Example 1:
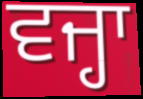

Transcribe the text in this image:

ਵਜ੍ਹਾ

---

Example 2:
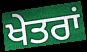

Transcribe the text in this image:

ਖੇਤਰਾਂ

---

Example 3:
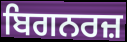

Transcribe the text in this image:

ਬਿਗਨਰਜ਼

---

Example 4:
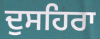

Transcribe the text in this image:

ਦੁਸਹਿਰਾ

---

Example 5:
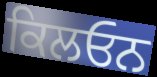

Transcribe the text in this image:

ਕਿਲਓਨ